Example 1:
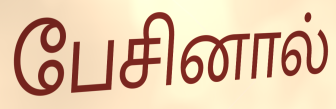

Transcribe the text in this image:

பேசினால்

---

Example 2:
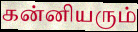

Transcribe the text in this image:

கன்னியரும்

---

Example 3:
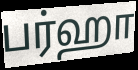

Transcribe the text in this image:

பர்ஹா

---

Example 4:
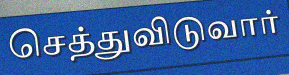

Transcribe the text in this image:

செத்துவிடுவார்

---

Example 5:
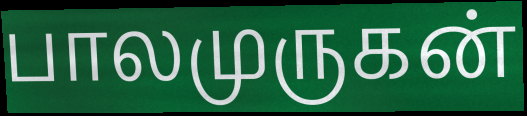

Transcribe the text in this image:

பாலமுருகன்